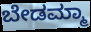
ಬೇಡಮ್ಮಾ